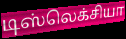
டிஸ்லெக்சியா